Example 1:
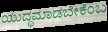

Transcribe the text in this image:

ಯುದ್ಧಮಾಡಬೇಕೆಂಬ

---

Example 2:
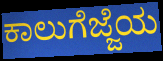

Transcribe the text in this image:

ಕಾಲುಗೆಜ್ಜೆಯ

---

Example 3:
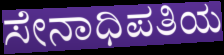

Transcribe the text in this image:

ಸೇನಾಧಿಪತಿಯ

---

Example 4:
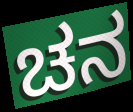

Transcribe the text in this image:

ಚನ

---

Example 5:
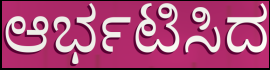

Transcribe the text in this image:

ಆರ್ಭಟಿಸಿದ